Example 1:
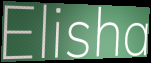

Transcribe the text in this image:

Elisha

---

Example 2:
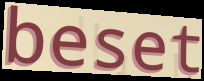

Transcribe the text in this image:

beset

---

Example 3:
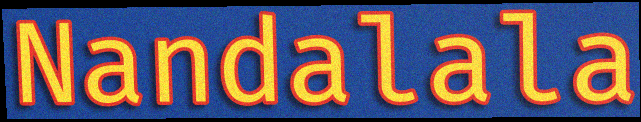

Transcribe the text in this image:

Nandalala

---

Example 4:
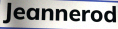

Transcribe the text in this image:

Jeannerod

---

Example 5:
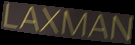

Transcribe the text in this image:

LAXMAN